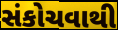
સંકોચવાથી